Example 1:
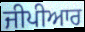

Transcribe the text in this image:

ਜੀਪੀਆਰ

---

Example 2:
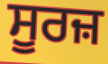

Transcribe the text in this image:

ਸੂਰਜ਼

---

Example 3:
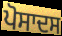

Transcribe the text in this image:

ਪੋਸਾਦਸ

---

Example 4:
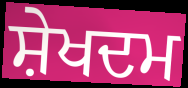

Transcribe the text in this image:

ਸ਼ੇਖਦਮ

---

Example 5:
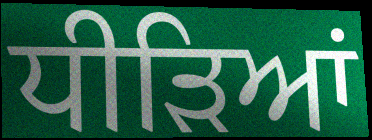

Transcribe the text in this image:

ਧੀੜਿਆਂ